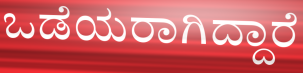
ಒಡೆಯರಾಗಿದ್ದಾರೆ